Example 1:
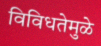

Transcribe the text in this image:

विविधतेमुळे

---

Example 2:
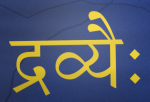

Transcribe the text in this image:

द्रव्यैः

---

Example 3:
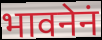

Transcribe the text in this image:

भावनेनं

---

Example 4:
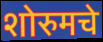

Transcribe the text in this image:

शोरुमचे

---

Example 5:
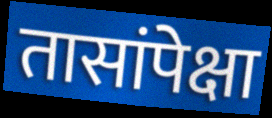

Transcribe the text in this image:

तासांपेक्षा